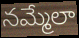
నమ్మేలా